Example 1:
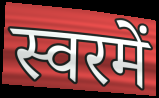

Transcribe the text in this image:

स्वरमें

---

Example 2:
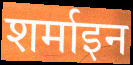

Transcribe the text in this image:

शर्माइन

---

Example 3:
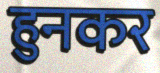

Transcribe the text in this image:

हुनकर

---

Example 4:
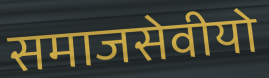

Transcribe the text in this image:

समाजसेवीयो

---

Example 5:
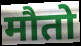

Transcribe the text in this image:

मौतो